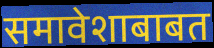
समावेशाबाबत